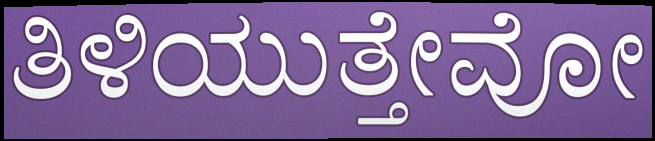
ತಿಳಿಯುತ್ತೇವೋ